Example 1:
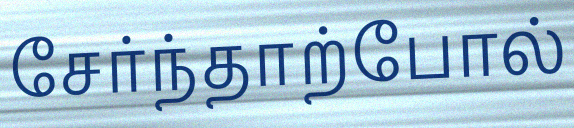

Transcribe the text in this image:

சேர்ந்தாற்போல்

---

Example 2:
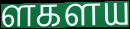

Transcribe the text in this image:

ளகளய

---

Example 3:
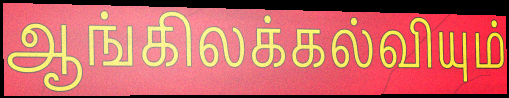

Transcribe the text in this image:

ஆங்கிலக்கல்வியும்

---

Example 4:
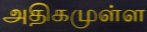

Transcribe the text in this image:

அதிகமுள்ள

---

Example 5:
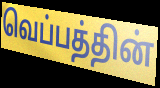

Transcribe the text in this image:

வெப்பத்தின்